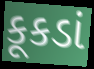
કૂકડાં